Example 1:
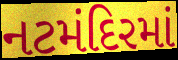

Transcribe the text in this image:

નટમંદિરમાં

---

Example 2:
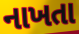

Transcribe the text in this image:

નાખતા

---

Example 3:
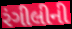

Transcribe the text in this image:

રંગીલીની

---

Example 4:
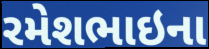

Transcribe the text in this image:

રમેશભાઇના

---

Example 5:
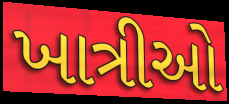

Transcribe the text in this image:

ખાત્રીઓ